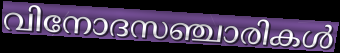
വിനോദസഞ്ചാരികൾ